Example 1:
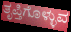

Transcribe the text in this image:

ತೃಪ್ತಿಗೊಳ್ಳುವ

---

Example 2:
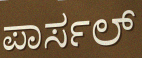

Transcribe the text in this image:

ಪಾರ್ಸಲ್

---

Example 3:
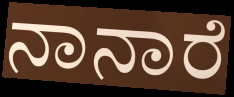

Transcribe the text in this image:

ನಾನಾರೆ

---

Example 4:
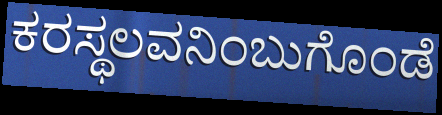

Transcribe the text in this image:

ಕರಸ್ಥಲವನಿಂಬುಗೊಂಡೆ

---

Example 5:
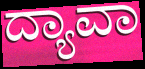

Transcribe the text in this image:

ದ್ಯಾವಾ